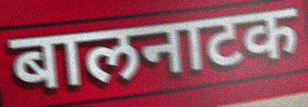
बालनाटक